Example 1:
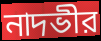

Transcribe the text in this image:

নাদভীর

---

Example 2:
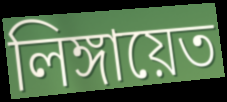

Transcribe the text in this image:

লিঙ্গায়েত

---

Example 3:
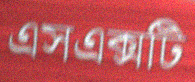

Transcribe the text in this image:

এসএক্সটি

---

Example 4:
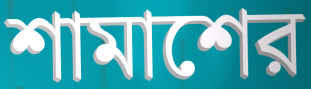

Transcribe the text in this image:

শামাশের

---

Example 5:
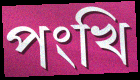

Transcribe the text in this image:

পংখি